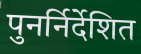
पुनर्निर्देशित